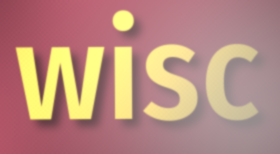
wisc